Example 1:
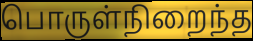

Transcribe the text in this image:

பொருள்நிறைந்த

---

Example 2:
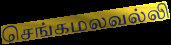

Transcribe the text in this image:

செங்கமலவல்லி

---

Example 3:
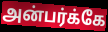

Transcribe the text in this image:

அன்பர்க்கே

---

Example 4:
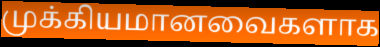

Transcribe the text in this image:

முக்கியமானவைகளாக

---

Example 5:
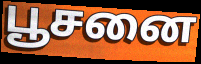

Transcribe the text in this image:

பூசனை